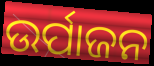
ଉର୍ପାଜନ